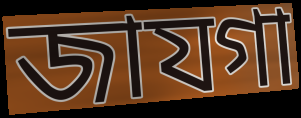
জাযগা